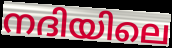
നദിയിലെ